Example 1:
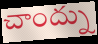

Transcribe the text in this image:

చాంద్ను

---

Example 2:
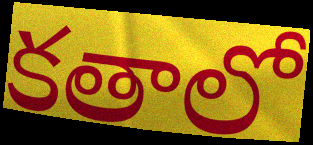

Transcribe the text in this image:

కతాలో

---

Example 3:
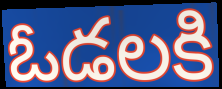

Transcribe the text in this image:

ఓడలకి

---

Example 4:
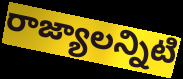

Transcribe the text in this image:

రాజ్యాలన్నిటి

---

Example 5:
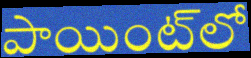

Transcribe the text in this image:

పాయింట్‌లో